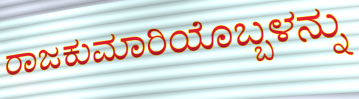
ರಾಜಕುಮಾರಿಯೊಬ್ಬಳನ್ನು